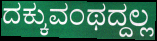
ದಕ್ಕುವಂಥದ್ದಲ್ಲ